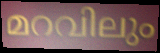
മറവിലും